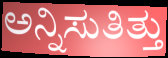
ಅನ್ನಿಸುತಿತ್ತು